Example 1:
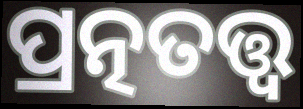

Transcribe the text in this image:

ପ୍ରତ୍ନତତ୍ତ୍ୱ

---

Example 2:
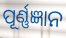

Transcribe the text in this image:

ପୂର୍ଣ୍ଣଜ୍ଞାନ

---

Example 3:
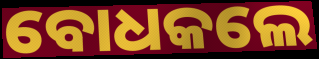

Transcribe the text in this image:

ବୋଧକଲେ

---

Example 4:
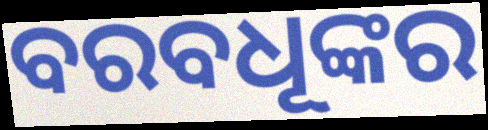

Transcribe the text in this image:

ବରବଧୂଙ୍କର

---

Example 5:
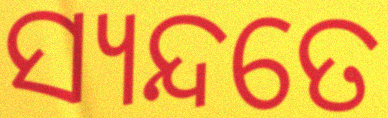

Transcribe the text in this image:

ସ୍ଯନ୍ଦତେ